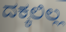
ದಕ್ಕಲಿಲ್ಲ